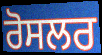
ਰੋਸਲਰ